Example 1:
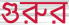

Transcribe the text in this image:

গুরুর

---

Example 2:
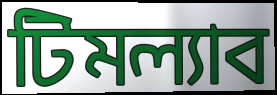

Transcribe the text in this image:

টিমল্যাব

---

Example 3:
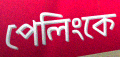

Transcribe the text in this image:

পেলিংকে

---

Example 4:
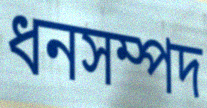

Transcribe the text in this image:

ধনসম্পদ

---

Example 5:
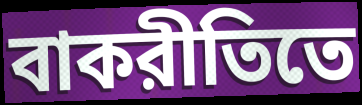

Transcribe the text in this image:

বাকরীতিতে